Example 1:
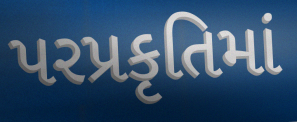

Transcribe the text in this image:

પરપ્રકૃતિમાં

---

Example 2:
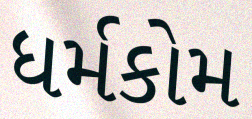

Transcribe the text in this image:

ધર્મકોમ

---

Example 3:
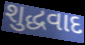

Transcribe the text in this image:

શુદ્ધવાદ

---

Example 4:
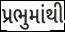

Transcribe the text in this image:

પ્રભુમાંથી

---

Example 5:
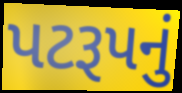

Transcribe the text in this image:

પટરૂપનું